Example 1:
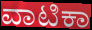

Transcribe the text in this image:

ವಾಟಿಕಾ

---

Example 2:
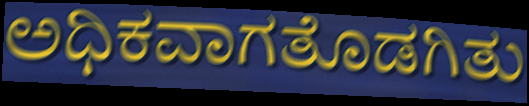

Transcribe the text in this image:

ಅಧಿಕವಾಗತೊಡಗಿತು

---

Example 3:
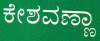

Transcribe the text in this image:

ಕೇಶವಣ್ಣಾ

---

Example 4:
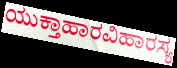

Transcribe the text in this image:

ಯುಕ್ತಾಹಾರವಿಹಾರಸ್ಯ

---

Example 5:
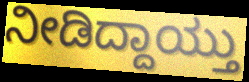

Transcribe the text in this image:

ನೀಡಿದ್ದಾಯ್ತು